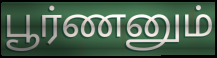
பூர்ணனும்